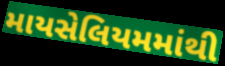
માયસેલિયમમાંથી